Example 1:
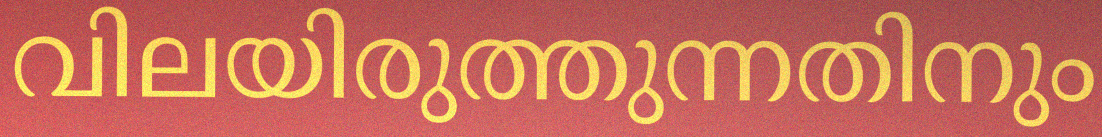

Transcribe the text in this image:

വിലയിരുത്തുന്നതിനും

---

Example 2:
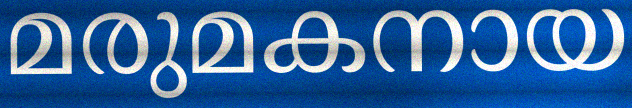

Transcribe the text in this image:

മരുമകനായ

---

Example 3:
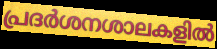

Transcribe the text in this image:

പ്രദർശനശാലകളിൽ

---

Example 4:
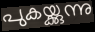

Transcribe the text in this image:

പുകയ്ക്കുന്നു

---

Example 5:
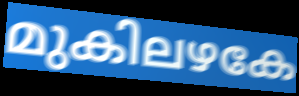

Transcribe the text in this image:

മുകിലഴകേ